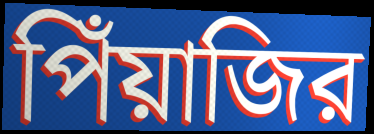
পিঁয়াজির